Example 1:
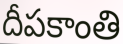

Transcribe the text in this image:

దీపకాంతి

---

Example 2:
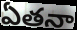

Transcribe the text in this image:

ఏతనా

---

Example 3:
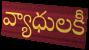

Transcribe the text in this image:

వ్యాధులకీ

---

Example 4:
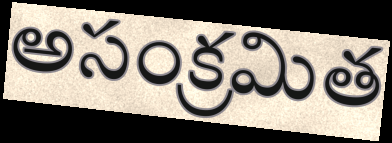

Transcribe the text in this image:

అసంక్రమిత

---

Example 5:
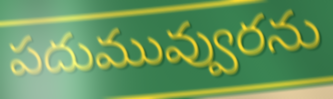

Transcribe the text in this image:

పదుమువ్వురను